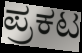
ಪ್ರಕಟ